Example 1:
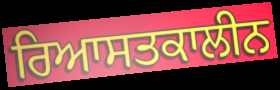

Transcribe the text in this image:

ਰਿਆਸਤਕਾਲੀਨ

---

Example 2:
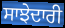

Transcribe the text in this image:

ਸਾਝੇਦਾਰੀ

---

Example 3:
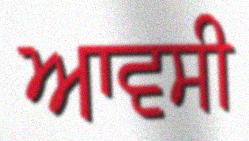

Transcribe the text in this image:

ਆਵਸੀ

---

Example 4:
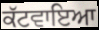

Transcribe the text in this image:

ਕੱਟਵਾਇਆ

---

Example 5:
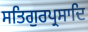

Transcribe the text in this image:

ਸਤਿਗੁਰਪ੍ਰਸਾਦਿ